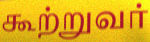
கூற்றுவர்